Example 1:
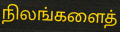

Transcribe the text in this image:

நிலங்களைத்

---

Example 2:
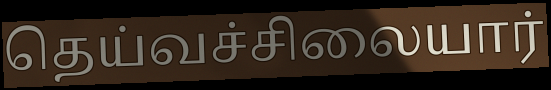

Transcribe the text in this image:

தெய்வச்சிலையார்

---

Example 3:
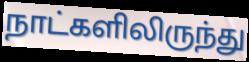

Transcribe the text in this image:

நாட்களிலிருந்து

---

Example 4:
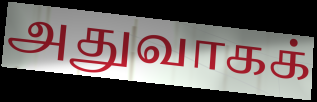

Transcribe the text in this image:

அதுவாகக்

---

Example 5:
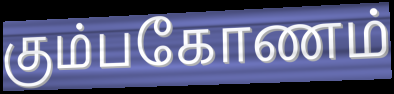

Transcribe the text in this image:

கும்பகோணம்